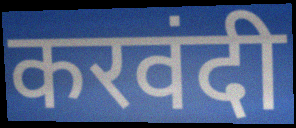
करवंदी